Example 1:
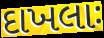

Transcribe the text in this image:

દાખલાઃ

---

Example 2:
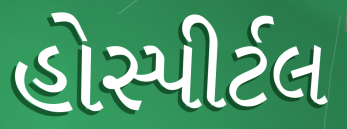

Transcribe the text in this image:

હોસ્પીર્ટલ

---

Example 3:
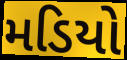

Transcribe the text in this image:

મડિયો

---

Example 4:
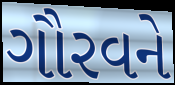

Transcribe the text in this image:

ગૌરવને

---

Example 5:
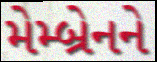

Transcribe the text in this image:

મેમ્બ્રેનને